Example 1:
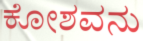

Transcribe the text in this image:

ಕೋಶವನು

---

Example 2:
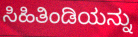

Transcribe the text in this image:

ಸಿಹಿತಿಂಡಿಯನ್ನು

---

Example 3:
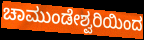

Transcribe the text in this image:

ಚಾಮುಂಡೇಶ್ವರಿಯಿಂದ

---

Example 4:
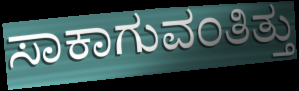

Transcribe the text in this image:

ಸಾಕಾಗುವಂತಿತ್ತು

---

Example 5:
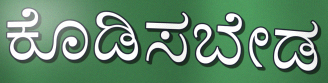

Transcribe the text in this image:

ಕೊಡಿಸಬೇಡ